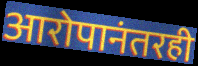
आरोपानंतरही